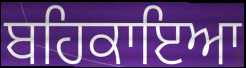
ਬਹਿਕਾਇਆ